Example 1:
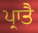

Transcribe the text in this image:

ਪ੍ਰਾਤੈ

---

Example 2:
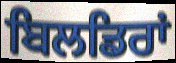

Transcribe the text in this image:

ਬਿਲਡਿਰਾਂ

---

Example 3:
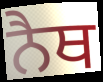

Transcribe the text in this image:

ਨੈਥ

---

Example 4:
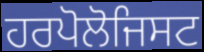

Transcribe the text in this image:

ਹਰਪੋਲੋਜਿਸਟ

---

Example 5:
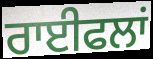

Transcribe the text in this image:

ਰਾਈਫਲਾਂ